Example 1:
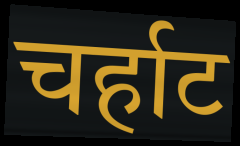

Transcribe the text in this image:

चर्हाट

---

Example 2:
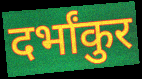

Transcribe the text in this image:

दर्भांकुर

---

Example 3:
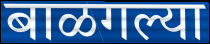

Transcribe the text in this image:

बाळगल्या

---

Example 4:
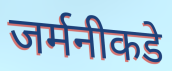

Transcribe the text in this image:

जर्मनीकडे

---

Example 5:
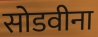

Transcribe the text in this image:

सोडवीना